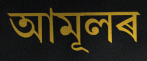
আমূলৰ